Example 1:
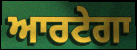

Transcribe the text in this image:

ਆਰਟੇਗਾ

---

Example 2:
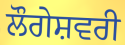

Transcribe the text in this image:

ਲੌਗੇਸ਼ਵਰੀ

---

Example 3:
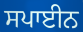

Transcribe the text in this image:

ਸਪਾਈਨ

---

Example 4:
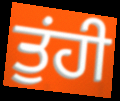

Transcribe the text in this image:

ਤੁਂਹੀ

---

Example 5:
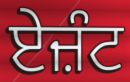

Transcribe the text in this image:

ਏਜ਼ੰਟ